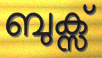
ബുക്സ്